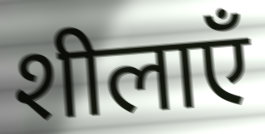
शीलाएँ